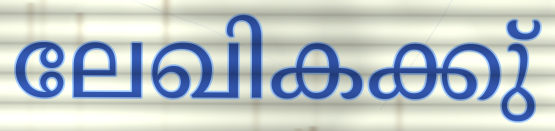
ലേഖികക്കു്